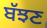
ਬੱਝਣ